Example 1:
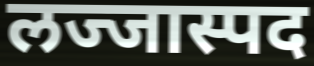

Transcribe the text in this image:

लज्जास्पद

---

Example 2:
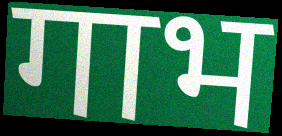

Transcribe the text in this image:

गाभ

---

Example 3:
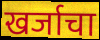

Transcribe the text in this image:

खर्जाचा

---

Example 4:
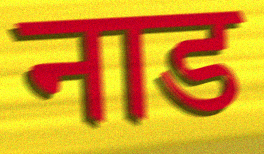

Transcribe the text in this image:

नाड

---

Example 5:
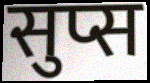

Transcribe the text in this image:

सुप्स